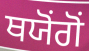
ਥਯੋਂਗੋਂ